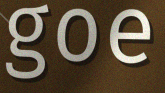
goe